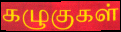
கழுகுகள்